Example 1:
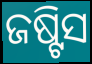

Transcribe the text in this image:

ଜଷ୍ଟିସ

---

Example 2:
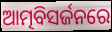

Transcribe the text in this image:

ଆତ୍ମବିସର୍ଜନରେ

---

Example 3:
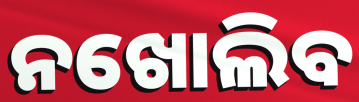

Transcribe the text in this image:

ନଖୋଲିବ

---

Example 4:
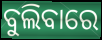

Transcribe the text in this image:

ବୁଲିବାରେ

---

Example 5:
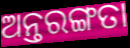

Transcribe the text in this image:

ଅନ୍ତରଙ୍ଗତା